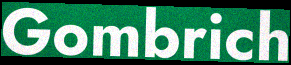
Gombrich